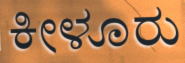
ಕೀಳೂರು